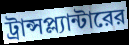
ট্রান্সপ্ল্যান্টারের